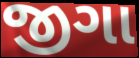
જીગા